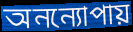
অনন্যোপায়